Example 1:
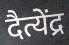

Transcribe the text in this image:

दैत्येंद्र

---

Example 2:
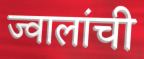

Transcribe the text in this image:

ज्वालांची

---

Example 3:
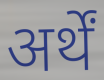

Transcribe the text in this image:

अर्थें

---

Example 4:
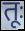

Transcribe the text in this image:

तूः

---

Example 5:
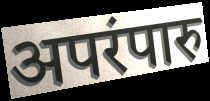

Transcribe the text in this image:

अपरंपारु